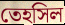
তেহসিল